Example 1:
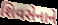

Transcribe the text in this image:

શિવસેનાને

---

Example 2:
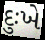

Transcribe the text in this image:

દુઃખે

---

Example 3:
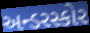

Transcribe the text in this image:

અન્ડરસ્કોર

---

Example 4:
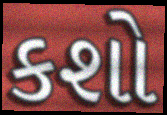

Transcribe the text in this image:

કશો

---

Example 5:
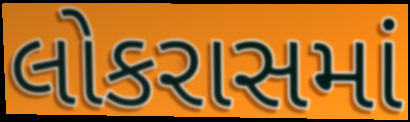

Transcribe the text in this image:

લોકરાસમાં